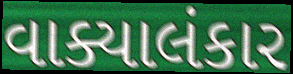
વાક્યાલંકાર